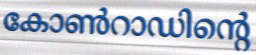
കോൺറാഡിന്റെ